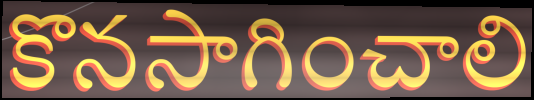
కొనసాగించాలి